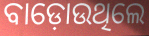
ବାଡ଼ୋଉଥିଲେ